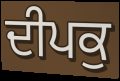
ਦੀਪਕੁ